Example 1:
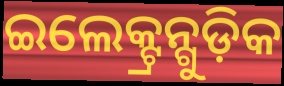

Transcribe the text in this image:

ଇଲେକ୍ଟ୍ରନ୍ଗୁଡ଼ିକ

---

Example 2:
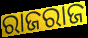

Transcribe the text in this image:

ରାଜରାଜ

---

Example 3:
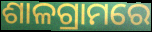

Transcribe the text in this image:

ଶାଳଗ୍ରାମରେ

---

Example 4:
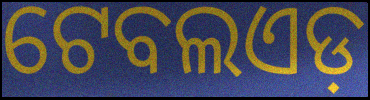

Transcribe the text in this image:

ଟେବଲଏଡ଼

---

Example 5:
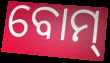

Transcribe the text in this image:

ବୋମ୍